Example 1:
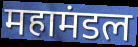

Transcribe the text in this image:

महामंडल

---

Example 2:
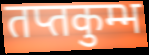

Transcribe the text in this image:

तप्तकुम्भ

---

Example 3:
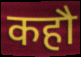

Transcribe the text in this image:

कहौ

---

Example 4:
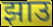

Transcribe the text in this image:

झाउ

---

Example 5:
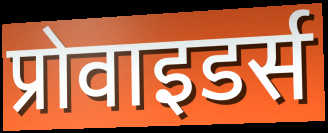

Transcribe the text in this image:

प्रोवाइडर्स